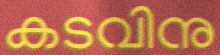
കടവിനു